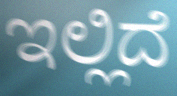
ಇಲ್ಲಿದೆ